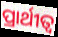
ପ୍ରାର୍ଥୀତ୍ଵ